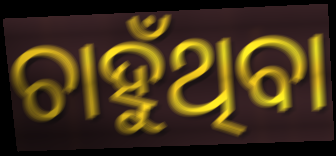
ଚାହୁଁଥିବା